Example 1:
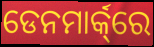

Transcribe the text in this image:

ଡେନମାର୍କ୍‌ରେ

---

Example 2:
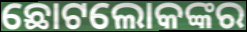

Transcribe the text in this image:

ଛୋଟଲୋକଙ୍କର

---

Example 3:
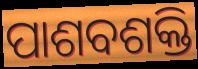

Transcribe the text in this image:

ପାଶବଶକ୍ତି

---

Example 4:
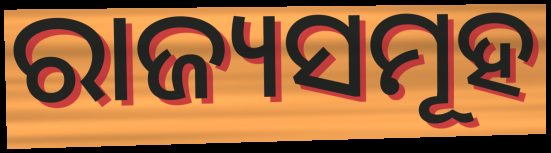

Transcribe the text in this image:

ରାଜ୍ୟସମୂହ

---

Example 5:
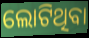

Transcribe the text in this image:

ଲୋଟିଥିବା